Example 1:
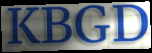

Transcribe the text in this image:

KBGD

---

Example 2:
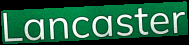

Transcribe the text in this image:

Lancaster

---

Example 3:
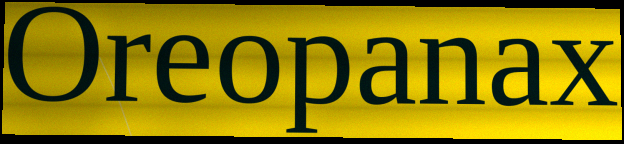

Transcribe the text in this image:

Oreopanax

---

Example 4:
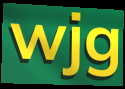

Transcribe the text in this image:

wjg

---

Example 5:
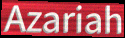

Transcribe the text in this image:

Azariah